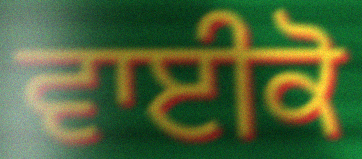
ਵਾਈਕੋ